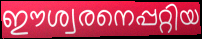
ഈശ്വരനെപ്പറ്റിയ